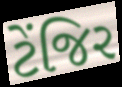
ટેંજિર